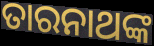
ତାରନାଥଙ୍କ